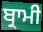
ਬ੍ਰਾਮੀ